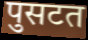
पुसटत